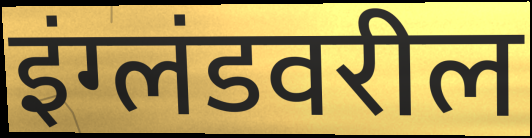
इंग्लंडवरील